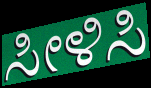
ಸೀಳಿಸಿ